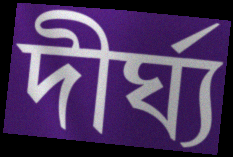
দীর্ঘ্য